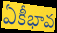
ఏకీభావ